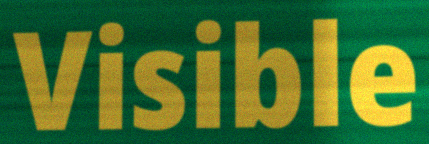
Visible